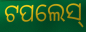
ଟପଲେସ୍